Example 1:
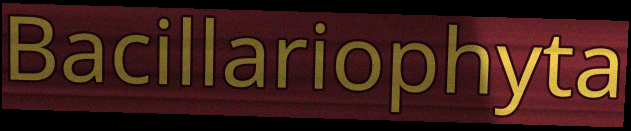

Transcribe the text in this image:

Bacillariophyta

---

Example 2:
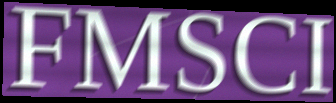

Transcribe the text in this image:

FMSCI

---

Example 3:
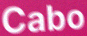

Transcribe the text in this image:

Cabo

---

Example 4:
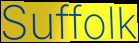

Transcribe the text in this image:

Suffolk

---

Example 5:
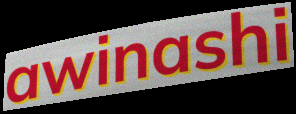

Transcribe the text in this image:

awinashi